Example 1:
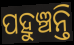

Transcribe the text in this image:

ପହୁଞ୍ଚନ୍ତି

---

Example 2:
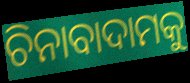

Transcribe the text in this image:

ଚିନାବାଦାମକୁ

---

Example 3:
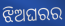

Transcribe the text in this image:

ଝିଅଘରର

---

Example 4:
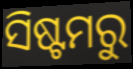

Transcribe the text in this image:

ସିଷ୍ଟମରୁ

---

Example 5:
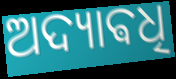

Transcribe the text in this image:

ଅଦ୍ୟାଵଧି